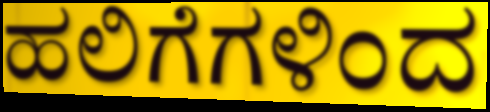
ಹಲಿಗೆಗಳಿಂದ